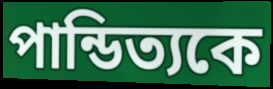
পান্ডিত্যকে